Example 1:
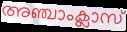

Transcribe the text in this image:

അഞ്ചാംക്ലാസ്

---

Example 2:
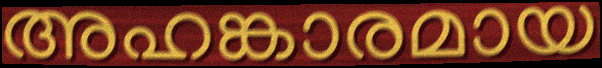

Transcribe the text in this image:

അഹങ്കാരമായ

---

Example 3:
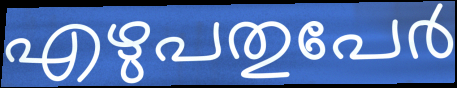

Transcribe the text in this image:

എഴുപതുപേർ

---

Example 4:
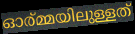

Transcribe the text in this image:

ഓര്മ്മയിലുള്ളത്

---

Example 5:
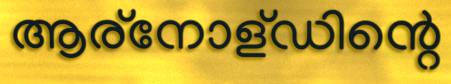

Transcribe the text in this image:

ആര്നോള്ഡിന്റെ